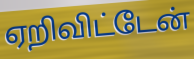
ஏறிவிட்டேன்